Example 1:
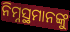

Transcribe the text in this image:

ନିମ୍ନସ୍ଥମାନଙ୍କୁ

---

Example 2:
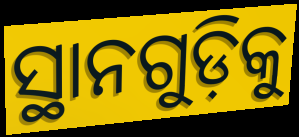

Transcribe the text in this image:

ସ୍ଥାନଗୁଡ଼ିକୁ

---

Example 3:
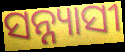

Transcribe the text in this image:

ସନ୍ନ୍ୟାସୀ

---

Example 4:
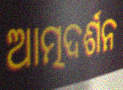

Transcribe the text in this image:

ଆତ୍ମଦର୍ଶନ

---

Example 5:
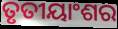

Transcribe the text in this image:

ତୃତୀୟାଂଶର